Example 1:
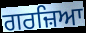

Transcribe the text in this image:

ਗਰਜ਼ਿਆ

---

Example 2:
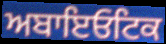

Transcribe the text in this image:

ਅਬਾਇਓਟਿਕ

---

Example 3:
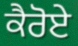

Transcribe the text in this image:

ਕੈਰੋਏ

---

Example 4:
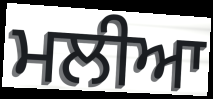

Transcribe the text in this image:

ਮਲੀਆ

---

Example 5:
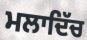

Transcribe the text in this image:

ਮਲਾਦਿੱਚ